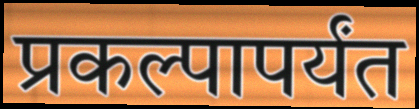
प्रकल्पापर्यंत